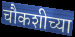
चौकशीच्या